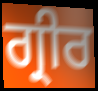
ਗ੍ਰੀਰ